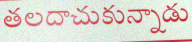
తలదాచుకున్నాడు